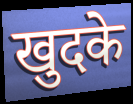
खुदके